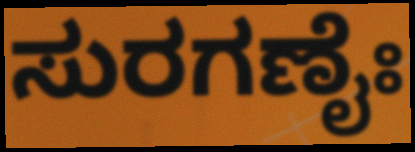
ಸುರಗಣೈಃ